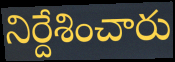
నిర్దేశించారు